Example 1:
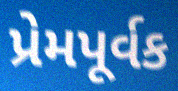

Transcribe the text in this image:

પ્રેમપૂર્વક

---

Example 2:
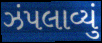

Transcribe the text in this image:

ઝંપલાવ્યું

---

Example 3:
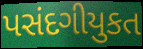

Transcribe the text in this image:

પસંદગીયુકત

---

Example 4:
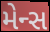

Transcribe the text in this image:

મેન્સ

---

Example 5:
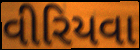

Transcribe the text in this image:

વીરિયવા